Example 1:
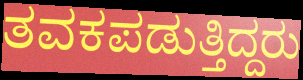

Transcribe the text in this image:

ತವಕಪಡುತ್ತಿದ್ದರು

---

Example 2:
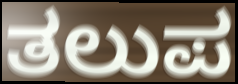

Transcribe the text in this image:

ತಲುಪ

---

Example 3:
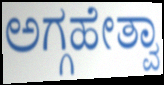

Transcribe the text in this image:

ಅಗ್ಗಹೇತ್ವಾ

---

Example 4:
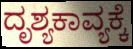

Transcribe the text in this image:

ದೃಶ್ಯಕಾವ್ಯಕ್ಕೆ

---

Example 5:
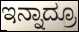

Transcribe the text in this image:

ಇನ್ನಾದ್ರೂ